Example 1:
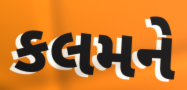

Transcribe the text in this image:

કલમને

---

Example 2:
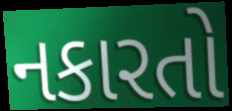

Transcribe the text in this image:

નકારતો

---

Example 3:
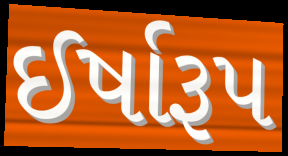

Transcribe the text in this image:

ઈર્ષારૂપ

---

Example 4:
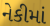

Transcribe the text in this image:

નેકીમાં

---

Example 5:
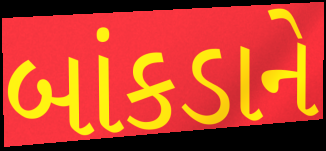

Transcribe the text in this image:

બાંકડાને